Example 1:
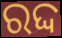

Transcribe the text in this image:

ରଦ୍ଦ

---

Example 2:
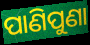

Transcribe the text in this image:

ପାଣିପୁଣା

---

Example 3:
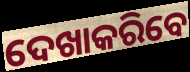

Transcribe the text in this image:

ଦେଖାକରିବେ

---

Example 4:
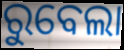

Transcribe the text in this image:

ରୁବେଲା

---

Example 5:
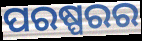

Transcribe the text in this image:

ପରଷ୍ପରର